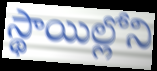
స్థాయిల్లోని